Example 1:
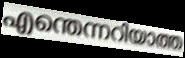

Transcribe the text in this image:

എന്തെന്നറിയാത്ത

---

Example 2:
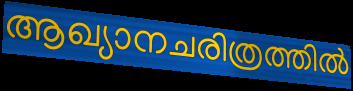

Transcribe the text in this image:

ആഖ്യാനചരിത്രത്തിൽ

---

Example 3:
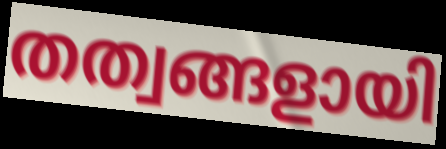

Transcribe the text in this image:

തത്വങ്ങളായി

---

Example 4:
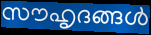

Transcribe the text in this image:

സൗഹൃദങ്ങൾ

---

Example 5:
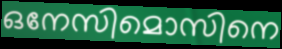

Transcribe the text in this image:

ഒനേസിമൊസിനെ